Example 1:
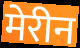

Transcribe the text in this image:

मेरीन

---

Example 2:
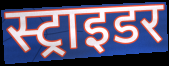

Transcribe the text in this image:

स्ट्राइडर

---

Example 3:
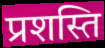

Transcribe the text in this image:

प्रशस्ति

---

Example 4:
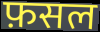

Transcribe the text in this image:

फ़सल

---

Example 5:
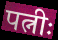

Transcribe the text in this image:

पत्नीः